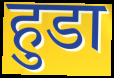
हुडा